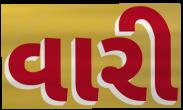
વારી